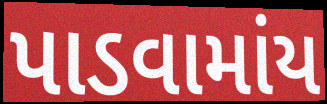
પાડવામાંય